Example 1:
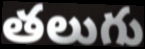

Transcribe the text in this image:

తలుగు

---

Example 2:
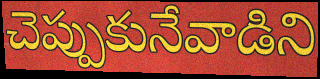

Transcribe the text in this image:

చెప్పుకునేవాడిని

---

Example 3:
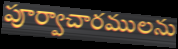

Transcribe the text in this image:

పూర్వాచారములను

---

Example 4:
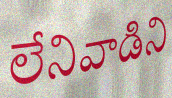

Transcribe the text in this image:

లేనివాడిని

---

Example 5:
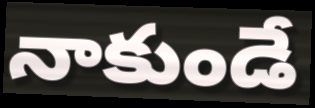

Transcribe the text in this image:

నాకుండే